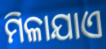
ମିଳାଯାଏ